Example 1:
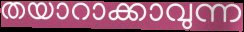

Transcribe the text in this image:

തയാറാക്കാവുന്ന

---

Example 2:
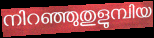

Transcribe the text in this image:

നിറഞ്ഞുതുളുമ്പിയ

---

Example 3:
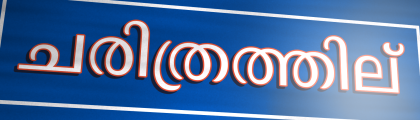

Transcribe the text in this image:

ചരിത്രത്തില്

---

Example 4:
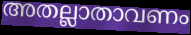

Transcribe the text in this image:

അതല്ലാതാവണം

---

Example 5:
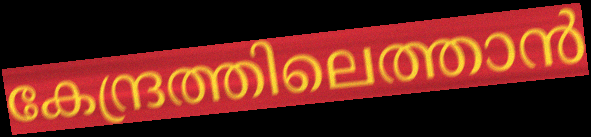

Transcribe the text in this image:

കേന്ദ്രത്തിലെത്താൻ